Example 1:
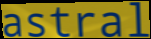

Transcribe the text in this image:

astral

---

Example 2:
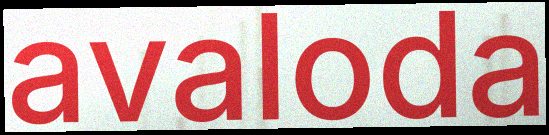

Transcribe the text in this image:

avaloda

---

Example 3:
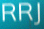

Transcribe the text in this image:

RRJ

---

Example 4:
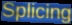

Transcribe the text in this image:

Splicing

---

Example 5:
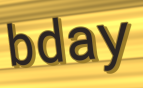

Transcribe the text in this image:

bday